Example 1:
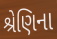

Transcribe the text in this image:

શ્રેણિના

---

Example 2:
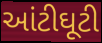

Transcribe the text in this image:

આંટીઘૂટી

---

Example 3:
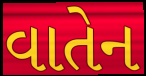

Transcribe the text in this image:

વાતેન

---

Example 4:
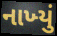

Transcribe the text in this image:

નાખ્‍યું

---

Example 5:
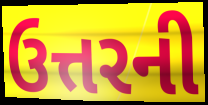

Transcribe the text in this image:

ઉત્તરની